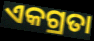
ଏକଗ୍ରତା